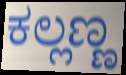
ಕಲ್ಲಣ್ಣ